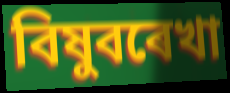
বিষুবৰেখা